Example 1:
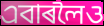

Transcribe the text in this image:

এবাৰলৈও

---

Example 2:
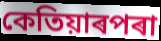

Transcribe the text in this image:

কেতিয়াৰপৰা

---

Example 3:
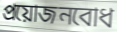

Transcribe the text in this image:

প্ৰয়োজনবোধ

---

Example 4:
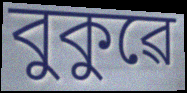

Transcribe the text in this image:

বুকুৱে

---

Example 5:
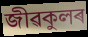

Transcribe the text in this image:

জীৱকুলৰ